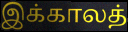
இக்காலத்